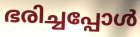
ഭരിച്ചപ്പോൾ